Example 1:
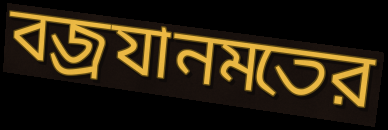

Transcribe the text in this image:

বজ্রযানমতের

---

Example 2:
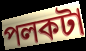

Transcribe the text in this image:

পলকটা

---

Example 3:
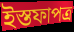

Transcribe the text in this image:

ইস্তফাপত্র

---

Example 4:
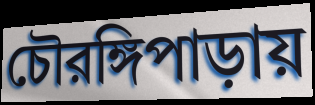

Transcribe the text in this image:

চৌরঙ্গিপাড়ায়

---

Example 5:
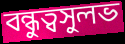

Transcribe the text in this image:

বন্ধুত্বসুলভ